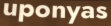
uponyas